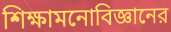
শিক্ষামনোবিজ্ঞানের